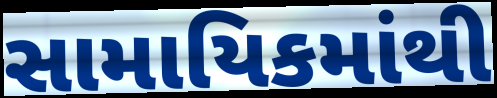
સામાયિકમાંથી